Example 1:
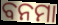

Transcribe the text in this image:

ବନମା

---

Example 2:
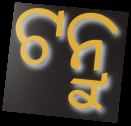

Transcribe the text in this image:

ଟନ୍ରୁ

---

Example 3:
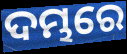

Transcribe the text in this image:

ଦମ୍ଭରେ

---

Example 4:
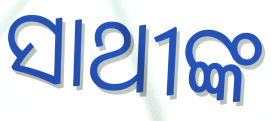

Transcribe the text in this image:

ସାଥୀଙ୍କ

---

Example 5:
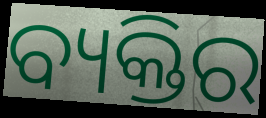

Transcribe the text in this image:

ବ୍ୟକ୍ତିର